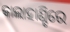
କାଲାହାଣ୍ଡିରେ